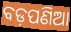
ବଡ଼ପଣିଆ